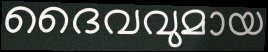
ദൈവവുമായ